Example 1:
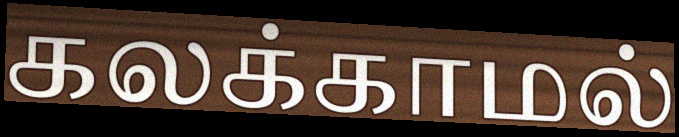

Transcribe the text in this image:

கலக்காமல்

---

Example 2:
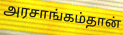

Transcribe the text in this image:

அரசாங்கம்தான்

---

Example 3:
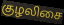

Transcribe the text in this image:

குழலிசை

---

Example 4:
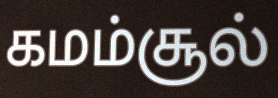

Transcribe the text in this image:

கமம்சூல்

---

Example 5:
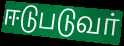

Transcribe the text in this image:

ஈடுபடுவர்